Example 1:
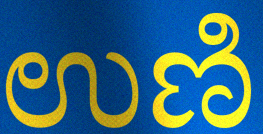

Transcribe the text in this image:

ಉಣಿ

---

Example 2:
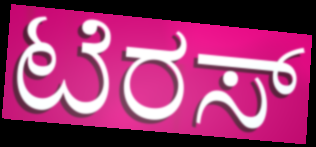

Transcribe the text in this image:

ಟೆರಸ್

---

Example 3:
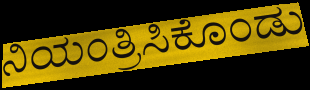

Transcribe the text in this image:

ನಿಯಂತ್ರಿಸಿಕೊಂಡು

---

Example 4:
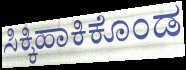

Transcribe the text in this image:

ಸಿಕ್ಕಿಹಾಕಿಕೊಂಡ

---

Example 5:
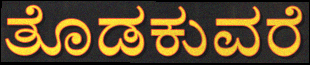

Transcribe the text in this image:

ತೊಡಕುವರೆ